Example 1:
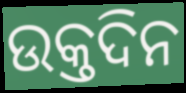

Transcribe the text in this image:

ଉକ୍ତଦିନ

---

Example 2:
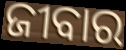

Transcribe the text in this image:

ଜୀବାର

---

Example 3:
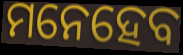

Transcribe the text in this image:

ମନେହେବ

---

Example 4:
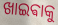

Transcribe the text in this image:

ଖାଇଵାକୁ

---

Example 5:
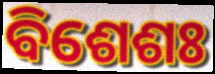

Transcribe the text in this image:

ବିଶେଶଃ